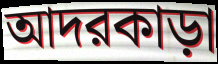
আদরকাড়া